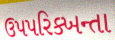
ઉપપરિક્ખન્તા